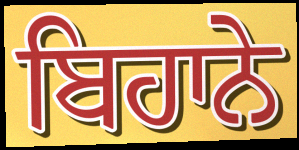
ਬਿਹਾਨੇ